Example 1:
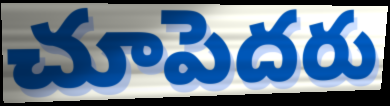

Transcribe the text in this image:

చూపెదరు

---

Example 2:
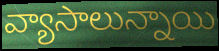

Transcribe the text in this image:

వ్యాసాలున్నాయి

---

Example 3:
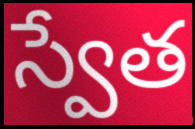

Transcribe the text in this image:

స్వేత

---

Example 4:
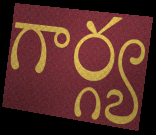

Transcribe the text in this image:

గార్గ్య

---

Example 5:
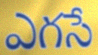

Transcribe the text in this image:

ఎగసే